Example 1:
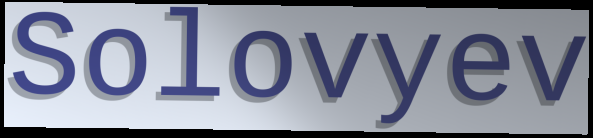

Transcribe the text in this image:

Solovyev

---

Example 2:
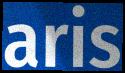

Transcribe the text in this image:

aris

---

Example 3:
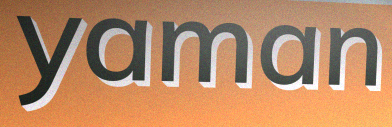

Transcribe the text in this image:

yaman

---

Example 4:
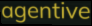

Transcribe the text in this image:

agentive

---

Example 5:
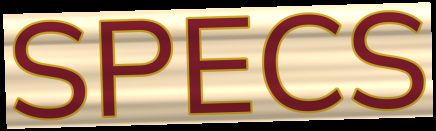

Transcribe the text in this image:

SPECS